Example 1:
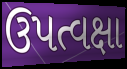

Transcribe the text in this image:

ઉપત્વક્ષા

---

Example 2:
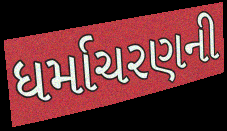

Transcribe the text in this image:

ધર્માચરણની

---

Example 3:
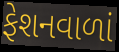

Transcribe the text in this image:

ફેશનવાળાં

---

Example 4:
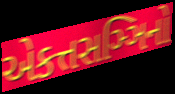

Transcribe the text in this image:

એકત્તસઞ્ઞિનો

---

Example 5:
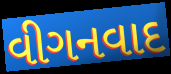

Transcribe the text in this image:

વીગનવાદ